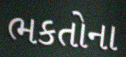
ભકતોના